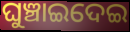
ଘୁଞ୍ଚାଇଦେଇ